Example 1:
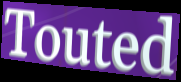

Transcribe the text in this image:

Touted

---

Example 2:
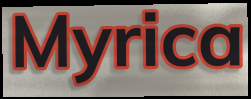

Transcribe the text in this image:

Myrica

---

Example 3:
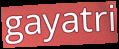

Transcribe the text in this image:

gayatri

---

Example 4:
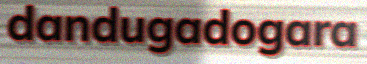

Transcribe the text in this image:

dandugadogara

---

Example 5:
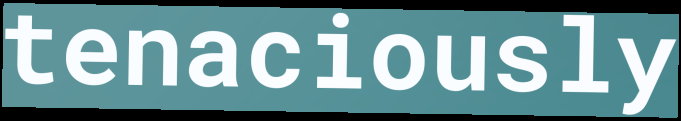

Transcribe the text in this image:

tenaciously